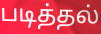
படித்தல்